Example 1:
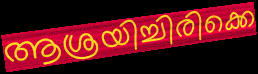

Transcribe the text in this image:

ആശ്രയിച്ചിരിക്കെ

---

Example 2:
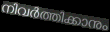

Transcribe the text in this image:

നിവർത്തിക്കാനും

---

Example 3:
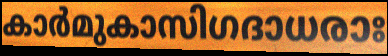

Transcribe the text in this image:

കാർമുകാസിഗദാധരാഃ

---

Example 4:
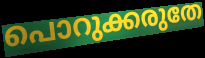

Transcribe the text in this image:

പൊറുക്കരുതേ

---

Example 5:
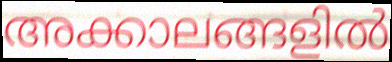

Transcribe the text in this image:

അക്കാലങ്ങളിൽ